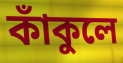
কাঁকুলে